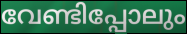
വേണ്ടിപ്പോലും